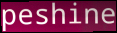
peshine